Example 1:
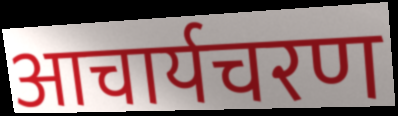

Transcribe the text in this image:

आचार्यचरण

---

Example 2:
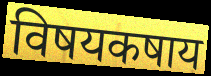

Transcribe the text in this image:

विषयकषाय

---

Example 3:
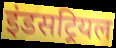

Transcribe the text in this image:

इंडसट्रियल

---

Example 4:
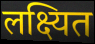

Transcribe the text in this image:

लक्ष्यित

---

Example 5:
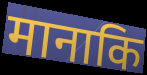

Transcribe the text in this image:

मानाकि